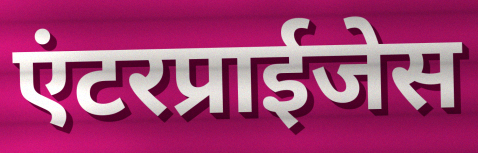
एंटरप्राईजेस